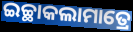
ଇଚ୍ଛାକଲାମାତ୍ରେ